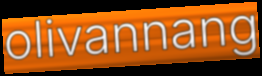
olivannang